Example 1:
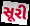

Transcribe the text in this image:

સૂરી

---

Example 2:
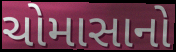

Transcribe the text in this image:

ચોમાસાનો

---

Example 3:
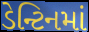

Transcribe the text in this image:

ડેન્ટિનમાં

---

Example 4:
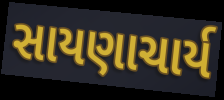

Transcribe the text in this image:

સાયણાચાર્ય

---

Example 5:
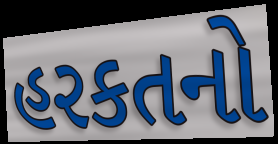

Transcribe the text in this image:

હરકતનો